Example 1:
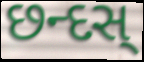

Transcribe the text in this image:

છન્દસ્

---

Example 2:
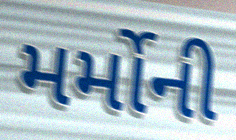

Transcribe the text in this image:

મર્મોની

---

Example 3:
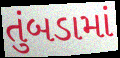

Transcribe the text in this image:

તુંબડામાં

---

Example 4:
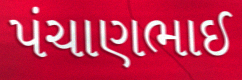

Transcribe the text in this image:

પંચાણભાઈ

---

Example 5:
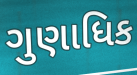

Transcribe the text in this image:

ગુણાધિક